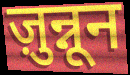
ज़ुन्नून